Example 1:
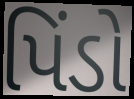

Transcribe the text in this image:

પિંડો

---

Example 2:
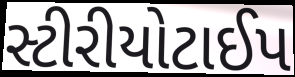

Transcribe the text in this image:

સ્ટીરીયોટાઈપ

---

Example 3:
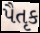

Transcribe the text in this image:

પૈતૃક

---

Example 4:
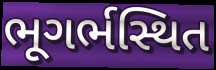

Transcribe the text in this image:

ભૂગર્ભસ્થિત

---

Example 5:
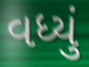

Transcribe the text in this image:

વધ્યું